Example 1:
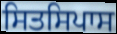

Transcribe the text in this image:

ਸਿਤਸਿਪਾਸ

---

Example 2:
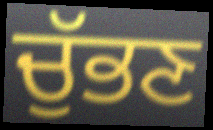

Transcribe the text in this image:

ਚੁੱਭਣ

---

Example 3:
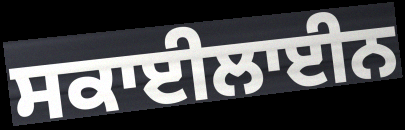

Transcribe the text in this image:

ਸਕਾਈਲਾਈਨ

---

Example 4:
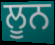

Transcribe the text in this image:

ਲੂਨ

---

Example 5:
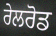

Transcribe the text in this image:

ਰੇਲਰੋਡ